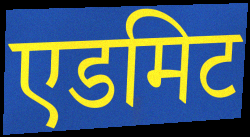
एडमिट